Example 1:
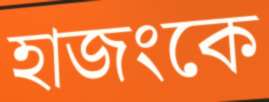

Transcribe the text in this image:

হাজংকে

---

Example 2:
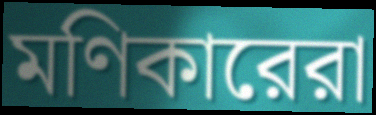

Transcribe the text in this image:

মণিকারেরা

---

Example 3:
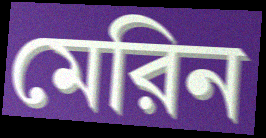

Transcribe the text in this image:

মেরিন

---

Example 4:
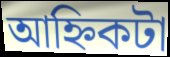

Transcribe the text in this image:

আহ্নিকটা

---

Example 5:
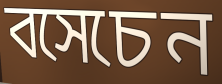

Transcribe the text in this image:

বসেচেন